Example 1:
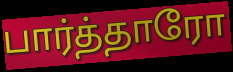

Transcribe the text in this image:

பார்த்தாரோ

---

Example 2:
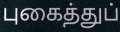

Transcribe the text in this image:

புகைத்துப்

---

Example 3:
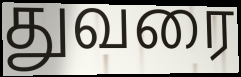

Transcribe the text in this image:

துவரை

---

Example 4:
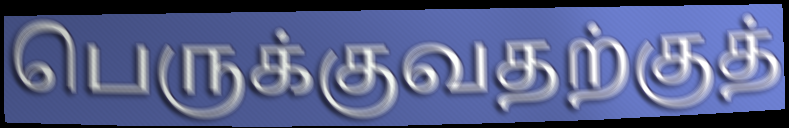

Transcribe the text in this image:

பெருக்குவதற்குத்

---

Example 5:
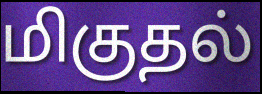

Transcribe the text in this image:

மிகுதல்